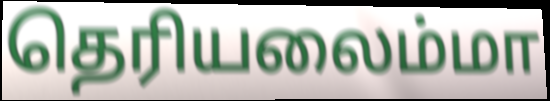
தெரியலைம்மா